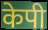
केपी